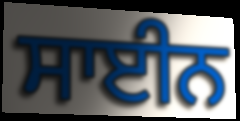
ਸਾਈਨ